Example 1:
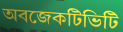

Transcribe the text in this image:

অবজেকটিভিটি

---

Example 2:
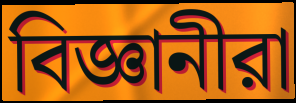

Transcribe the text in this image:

বিজ্ঞানীরা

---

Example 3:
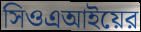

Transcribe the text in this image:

সিওএআইয়ের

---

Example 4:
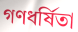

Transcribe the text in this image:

গণধর্ষিতা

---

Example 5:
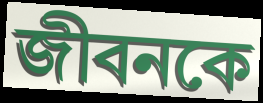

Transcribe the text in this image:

জীবনকে